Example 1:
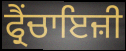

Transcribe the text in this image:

ਫ੍ਰੈਂਚਾਇਜ਼ੀ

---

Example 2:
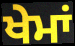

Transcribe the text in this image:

ਖੇਮਾਂ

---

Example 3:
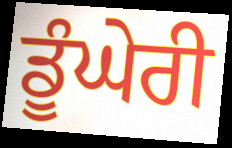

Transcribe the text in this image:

ਡੂੰਘੇਰੀ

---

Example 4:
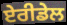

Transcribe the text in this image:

ਏਰੀਡੇਲ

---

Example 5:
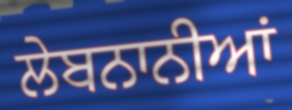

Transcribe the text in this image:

ਲੇਬਨਾਨੀਆਂ